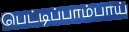
பெட்டிப்பாம்பாய்